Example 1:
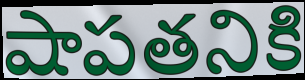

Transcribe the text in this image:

షాపతనికి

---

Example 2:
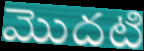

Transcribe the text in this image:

మొదటి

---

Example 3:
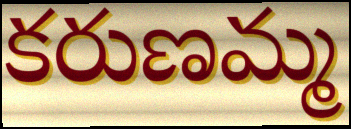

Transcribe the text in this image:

కరుణమ్మ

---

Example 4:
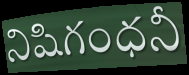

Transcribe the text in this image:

నిషిగంధనీ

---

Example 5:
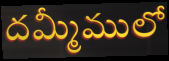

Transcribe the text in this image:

దమ్మీములో